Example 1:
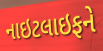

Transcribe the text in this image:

નાઇટલાઇફને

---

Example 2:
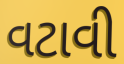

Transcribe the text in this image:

વટાવી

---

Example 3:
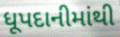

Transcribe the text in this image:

ધૂપદાનીમાંથી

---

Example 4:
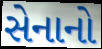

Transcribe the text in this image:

સેનાનો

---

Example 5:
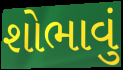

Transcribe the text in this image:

શોભાવું